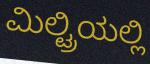
ಮಿಲ್ಟ್ರಿಯಲ್ಲಿ